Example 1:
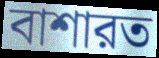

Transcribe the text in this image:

বাশারত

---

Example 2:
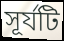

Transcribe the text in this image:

সূর্যটি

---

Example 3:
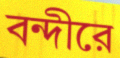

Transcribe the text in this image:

বন্দীরে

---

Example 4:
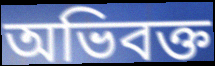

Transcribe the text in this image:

অভিবক্ত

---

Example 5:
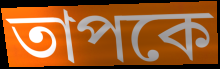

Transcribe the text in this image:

তাপকে